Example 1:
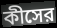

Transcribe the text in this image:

কীসের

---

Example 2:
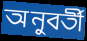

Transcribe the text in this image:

অনুবর্তী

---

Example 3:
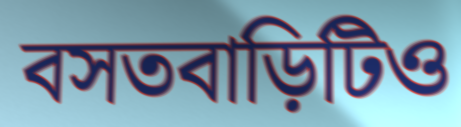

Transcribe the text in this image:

বসতবাড়িটিও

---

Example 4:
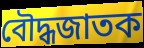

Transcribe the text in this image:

বৌদ্ধজাতক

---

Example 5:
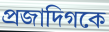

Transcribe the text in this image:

প্রজাদিগকে